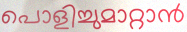
പൊളിച്ചുമാറ്റാൻ